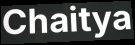
Chaitya